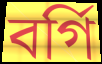
বর্গি